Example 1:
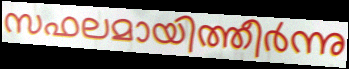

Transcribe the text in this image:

സഫലമായിത്തീർന്നു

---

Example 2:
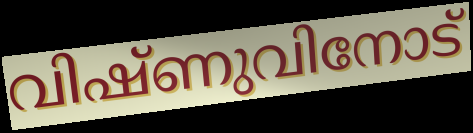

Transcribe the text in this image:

വിഷ്ണുവിനോട്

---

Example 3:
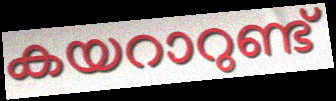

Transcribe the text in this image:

കയറാറുണ്ട്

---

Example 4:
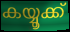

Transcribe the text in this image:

കയ്യൂക്ക്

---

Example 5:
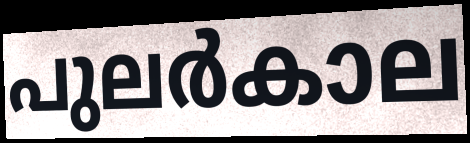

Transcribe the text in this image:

പുലർകാല